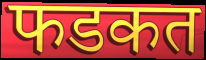
फडकत